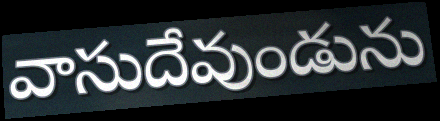
వాసుదేవుండును